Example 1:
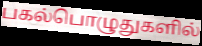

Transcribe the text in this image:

பகல்பொழுதுகளில்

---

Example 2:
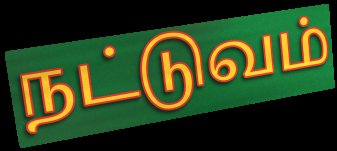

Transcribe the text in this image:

நட்டுவம்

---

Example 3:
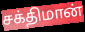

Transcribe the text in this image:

சக்திமான்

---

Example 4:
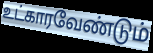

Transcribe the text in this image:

உட்காரவேண்டும்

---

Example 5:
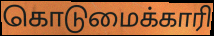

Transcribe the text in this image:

கொடுமைக்காரி